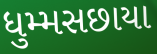
ધુમ્મસછાયા